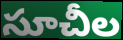
సూచీల